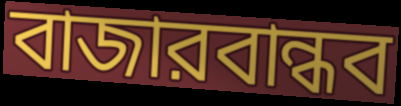
বাজারবান্ধব